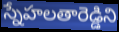
స్నేహలతారెడ్డిని